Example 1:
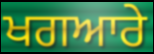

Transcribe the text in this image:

ਖਗਆਰੇ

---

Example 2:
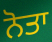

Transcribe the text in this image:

ਨੋਤਾ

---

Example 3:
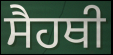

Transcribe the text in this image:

ਸੈਹਥੀ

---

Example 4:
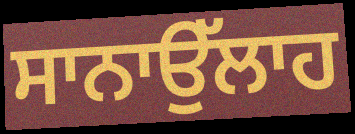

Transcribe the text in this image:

ਸਾਨਾਉੱਲਾਹ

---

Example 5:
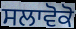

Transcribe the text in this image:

ਸਲਾਵੋਕੋ